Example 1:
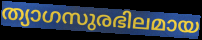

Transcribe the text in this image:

ത്യാഗസുരഭിലമായ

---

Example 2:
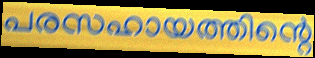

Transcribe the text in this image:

പരസഹായത്തിന്റെ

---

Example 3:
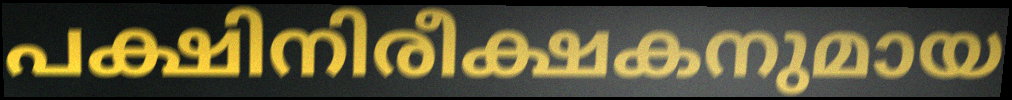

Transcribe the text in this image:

പക്ഷിനിരീക്ഷകനുമായ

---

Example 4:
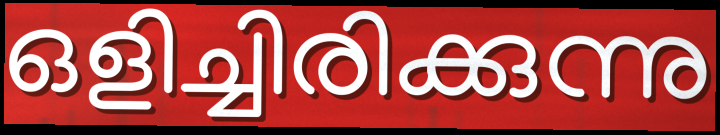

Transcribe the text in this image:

ഒളിച്ചിരിക്കുന്നു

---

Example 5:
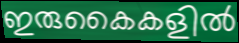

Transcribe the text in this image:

ഇരുകൈകളിൽ